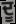
ਦੂ